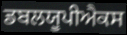
ਡਬਲਯੂਪੀਐਕਸ